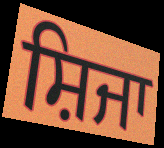
ਸ਼ਿਜਾ